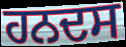
ਹਨਦਸ